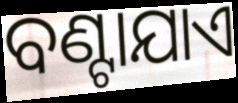
ବଣ୍ଟାଯାଏ